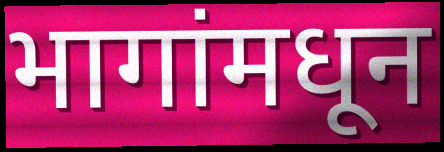
भागांमधून